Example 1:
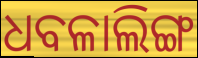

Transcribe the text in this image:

ଧବଳାଲିଙ୍ଗ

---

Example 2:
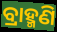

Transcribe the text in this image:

ବ୍ରାହ୍ମଣି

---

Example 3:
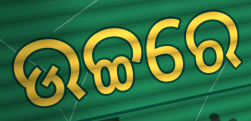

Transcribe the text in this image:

ଉଚ୍ଚରେ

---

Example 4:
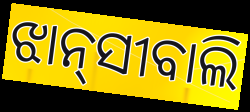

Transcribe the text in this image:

ଝାନ୍‌ସୀବାଲି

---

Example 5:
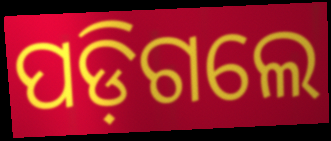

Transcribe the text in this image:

ପଡ଼ିଗଲେ